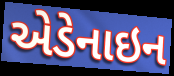
એડેનાઇન